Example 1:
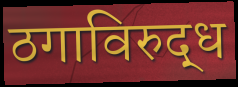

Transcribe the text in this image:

ठगाविरुद्ध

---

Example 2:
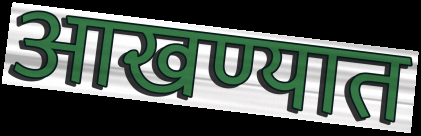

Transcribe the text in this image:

आखण्यात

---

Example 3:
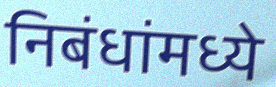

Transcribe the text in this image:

निबंधांमध्ये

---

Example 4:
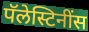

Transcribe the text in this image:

पॅलेस्टिनींस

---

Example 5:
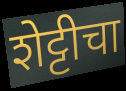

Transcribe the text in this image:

शेट्टीचा